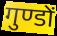
गुण्डों